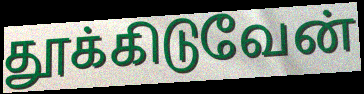
தூக்கிடுவேன்